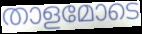
താളമോടെ